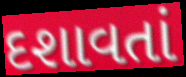
દશાવતાં